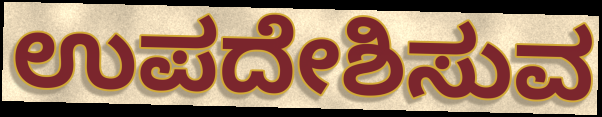
ಉಪದೇಶಿಸುವ